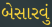
બેસારવું